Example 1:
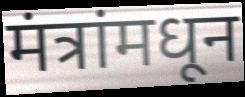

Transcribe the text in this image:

मंत्रांमधून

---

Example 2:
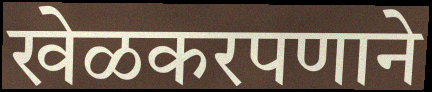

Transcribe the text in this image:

खेळकरपणाने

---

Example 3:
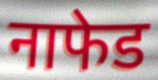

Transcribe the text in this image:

नाफेड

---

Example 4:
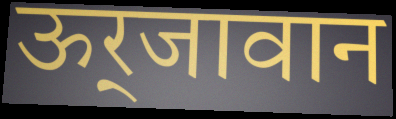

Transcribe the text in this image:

ऊर्जावान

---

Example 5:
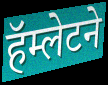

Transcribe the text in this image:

हॅम्लेटने